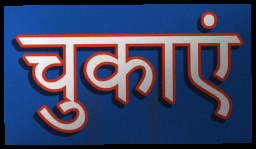
चुकाएं